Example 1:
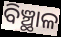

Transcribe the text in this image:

ବିଞ୍ଛାଳ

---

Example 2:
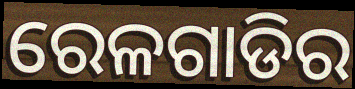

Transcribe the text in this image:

ରେଳଗାଡିର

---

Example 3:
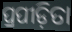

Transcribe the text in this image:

ପ୍ରପୀଡ଼ିତା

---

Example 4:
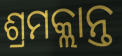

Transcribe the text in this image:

ଶ୍ରମକ୍ଲାନ୍ତ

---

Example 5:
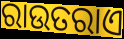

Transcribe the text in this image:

ରାଉତରାଏ